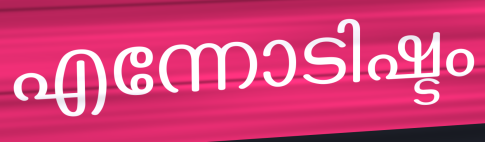
എന്നോടിഷ്ടം